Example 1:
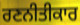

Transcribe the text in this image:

ਰਣਨੀਤੀਕਾਰ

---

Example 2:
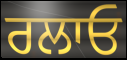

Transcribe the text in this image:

ਰਲਾਓ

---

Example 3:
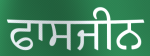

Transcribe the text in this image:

ਫਾਸਜੀਨ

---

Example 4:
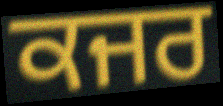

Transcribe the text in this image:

ਕਜਰ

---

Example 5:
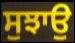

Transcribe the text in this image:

ਸੁਝਾਉ